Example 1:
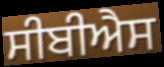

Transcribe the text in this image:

ਸੀਬੀਐਸ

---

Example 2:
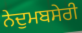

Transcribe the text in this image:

ਨੇਦੁਮਬਸੇਰੀ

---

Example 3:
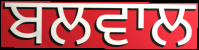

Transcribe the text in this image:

ਬਲਵਾਲ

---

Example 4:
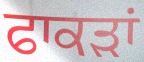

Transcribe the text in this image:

ਫਾਕੜਾਂ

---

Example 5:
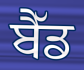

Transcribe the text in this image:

ਬੈੱਡ